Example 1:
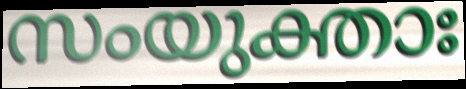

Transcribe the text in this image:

സംയുക്താഃ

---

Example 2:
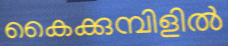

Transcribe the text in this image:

കൈക്കുമ്പിളിൽ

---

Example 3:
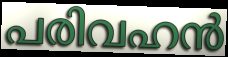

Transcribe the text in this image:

പരിവഹൻ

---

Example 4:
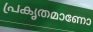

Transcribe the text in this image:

പ്രകൃതമാണോ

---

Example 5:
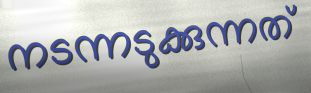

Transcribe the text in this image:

നടന്നടുക്കുന്നത്